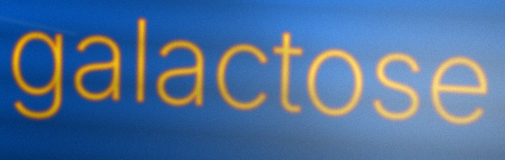
galactose